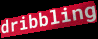
dribbling